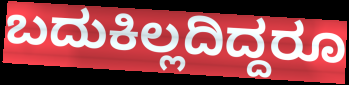
ಬದುಕಿಲ್ಲದಿದ್ದರೂ